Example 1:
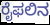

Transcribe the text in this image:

ರೈಫಲಿನ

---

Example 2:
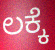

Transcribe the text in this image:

ಲಕ್ಕೆ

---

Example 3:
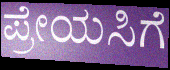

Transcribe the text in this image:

ಪ್ರೇಯಸಿಗೆ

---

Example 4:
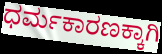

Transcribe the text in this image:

ಧರ್ಮಕಾರಣಕ್ಕಾಗಿ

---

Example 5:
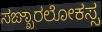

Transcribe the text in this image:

ಸಙ್ಖಾರಲೋಕಸ್ಸ